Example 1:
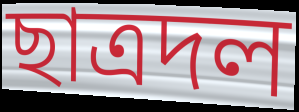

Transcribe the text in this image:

ছাত্রদল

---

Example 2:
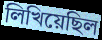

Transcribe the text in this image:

লিখিয়েছিল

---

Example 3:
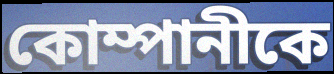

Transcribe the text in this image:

কোম্পানীকে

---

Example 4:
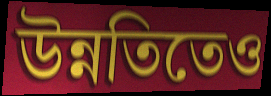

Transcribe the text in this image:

উন্নতিতেও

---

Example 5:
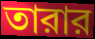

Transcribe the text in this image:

তারার